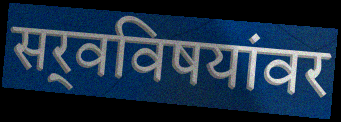
सर्वविषयांवर